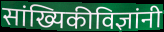
सांख्यिकीविज्ञांनी